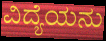
ವಿದ್ಯೆಯನು